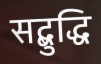
सद्बुद्धि